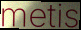
metis